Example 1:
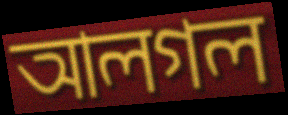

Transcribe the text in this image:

আলগল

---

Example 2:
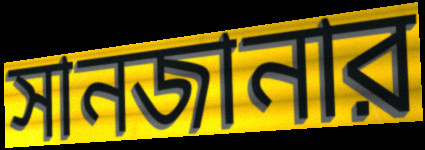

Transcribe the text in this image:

সানজানার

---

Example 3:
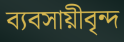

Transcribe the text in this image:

ব্যবসায়ীবৃন্দ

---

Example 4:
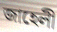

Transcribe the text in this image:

জাহেলী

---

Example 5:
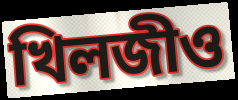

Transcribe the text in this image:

খিলজীও